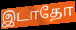
இடாதோ